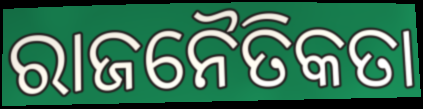
ରାଜନୈତିକତା